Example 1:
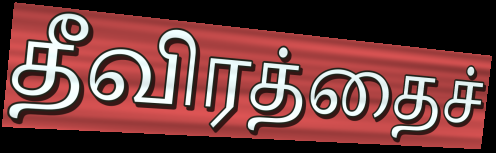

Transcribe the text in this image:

தீவிரத்தைச்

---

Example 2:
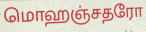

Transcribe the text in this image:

மொஹஞ்சதரோ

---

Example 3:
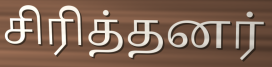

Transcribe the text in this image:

சிரித்தனர்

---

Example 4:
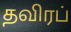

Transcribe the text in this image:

தவிரப்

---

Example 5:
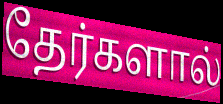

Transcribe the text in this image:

தேர்களால்